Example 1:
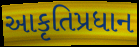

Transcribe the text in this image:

આકૃતિપ્રધાન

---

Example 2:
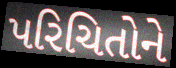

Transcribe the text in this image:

પરિચિતોને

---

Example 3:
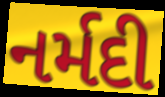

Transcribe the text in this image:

નર્મદી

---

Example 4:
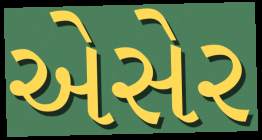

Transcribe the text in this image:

એસેર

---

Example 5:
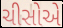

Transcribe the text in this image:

ચીસોએ